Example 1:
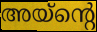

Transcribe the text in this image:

അയ്ന്റെ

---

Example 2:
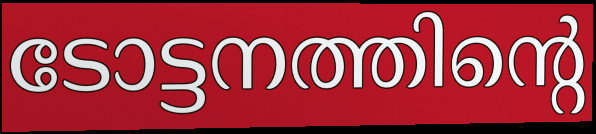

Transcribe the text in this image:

ടോട്ടനത്തിന്റെ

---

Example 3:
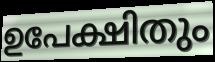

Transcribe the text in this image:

ഉപേക്ഷിതും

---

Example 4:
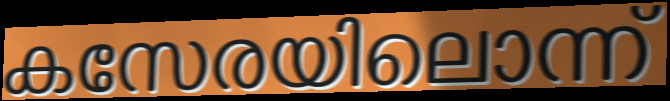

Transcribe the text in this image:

കസേരയിലൊന്ന്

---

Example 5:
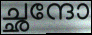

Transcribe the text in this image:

ച്ഛന്ദോ